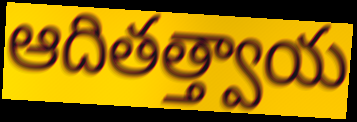
ఆదితత్త్వాయ